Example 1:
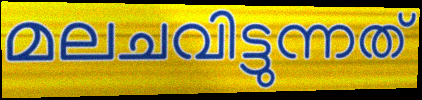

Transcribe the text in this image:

മലചവിട്ടുന്നത്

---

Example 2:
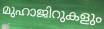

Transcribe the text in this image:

മുഹാജിറുകളും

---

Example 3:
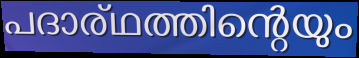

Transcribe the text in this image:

പദാര്ഥത്തിന്റെയും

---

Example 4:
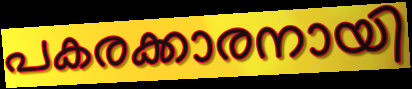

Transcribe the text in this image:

പകരക്കാരനായി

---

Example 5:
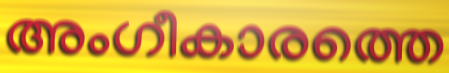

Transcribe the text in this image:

അംഗീകാരത്തെ